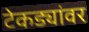
टेकड्यांवर